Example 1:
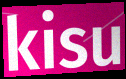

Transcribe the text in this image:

kisu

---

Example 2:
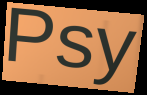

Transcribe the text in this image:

Psy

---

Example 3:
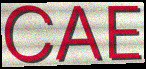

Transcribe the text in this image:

CAE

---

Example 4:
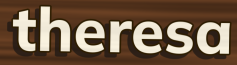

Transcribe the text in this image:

theresa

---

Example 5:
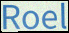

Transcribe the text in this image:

Roel